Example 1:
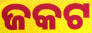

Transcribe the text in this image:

ଜକଟ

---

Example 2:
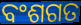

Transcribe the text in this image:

ବଂଶଗତ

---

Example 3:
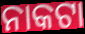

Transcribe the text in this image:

ନାକଟା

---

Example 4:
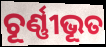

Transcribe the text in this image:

ଚୂର୍ଣ୍ଣୀଭୂତ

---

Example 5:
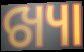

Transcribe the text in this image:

ଖ୍ୟା